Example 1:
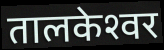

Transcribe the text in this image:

तालकेश्वर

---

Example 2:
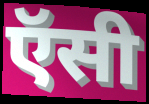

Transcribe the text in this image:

ऍसी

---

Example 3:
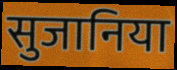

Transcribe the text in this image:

सुजानिया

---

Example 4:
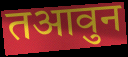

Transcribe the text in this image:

तआवुन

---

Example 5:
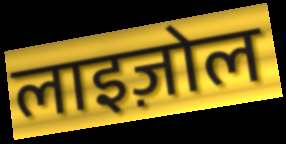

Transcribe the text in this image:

लाइज़ोल